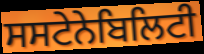
ਸਸਟੇਨੇਬਿਲਿਟੀ